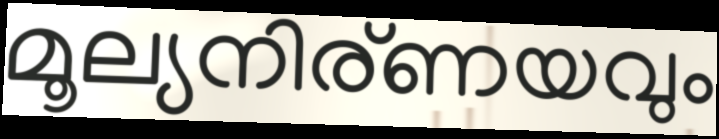
മൂല്യനിര്ണയവും